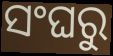
ସଂଘରୁ